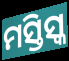
ମସ୍ତିସ୍କ